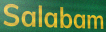
Salabam